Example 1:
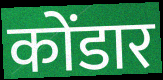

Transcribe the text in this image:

कोंडार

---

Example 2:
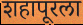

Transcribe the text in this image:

शहापूरला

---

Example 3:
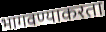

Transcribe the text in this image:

भागवण्याकरता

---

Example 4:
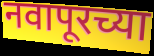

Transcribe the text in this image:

नवापूरच्या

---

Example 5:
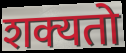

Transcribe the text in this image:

शक्‍यतो